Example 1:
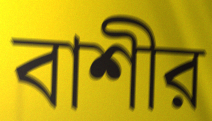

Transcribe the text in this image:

বাশীর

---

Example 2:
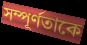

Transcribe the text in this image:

সম্পূর্ণতাকে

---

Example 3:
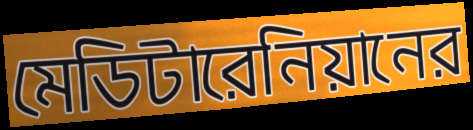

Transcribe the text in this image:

মেডিটারেনিয়ানের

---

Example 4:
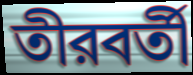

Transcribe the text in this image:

তীরবর্তী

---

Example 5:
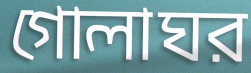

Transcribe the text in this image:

গোলাঘর